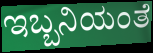
ಇಬ್ಬನಿಯಂತೆ